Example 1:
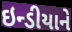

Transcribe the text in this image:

ઇન્ડીયાને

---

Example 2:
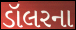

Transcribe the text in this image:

ડૉલરના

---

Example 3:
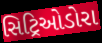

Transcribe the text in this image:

સિટ્રિઓડોરા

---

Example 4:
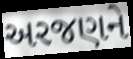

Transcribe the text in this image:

અરજણને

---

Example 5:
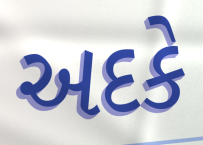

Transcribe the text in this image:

અદકે